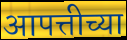
आपत्तीच्या